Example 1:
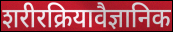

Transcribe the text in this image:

शरीरक्रियावैज्ञानिक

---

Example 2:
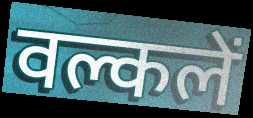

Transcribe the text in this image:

वल्कलें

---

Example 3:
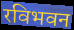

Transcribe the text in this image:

रविभवन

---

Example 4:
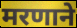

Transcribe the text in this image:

मरणाने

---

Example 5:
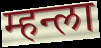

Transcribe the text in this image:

म्हन्ला